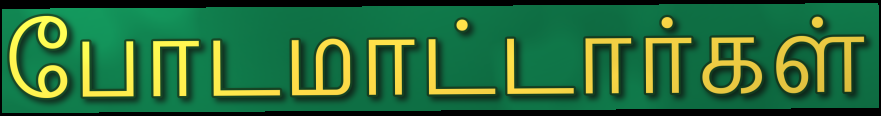
போடமாட்டார்கள்